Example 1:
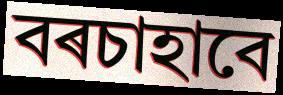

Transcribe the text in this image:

বৰচাহাবে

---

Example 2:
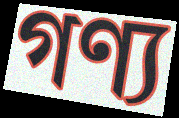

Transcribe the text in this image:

গণ্য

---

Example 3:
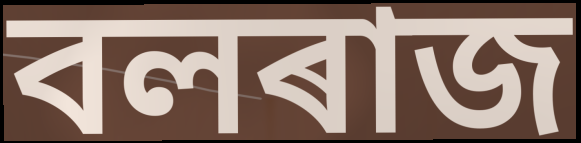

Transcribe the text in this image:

বলৰাজ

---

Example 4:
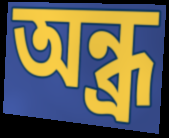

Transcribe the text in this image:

অন্ধ্ৰ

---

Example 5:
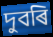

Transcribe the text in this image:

দুবৰি